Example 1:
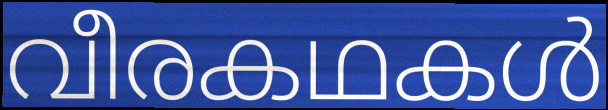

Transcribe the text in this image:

വീരകഥകൾ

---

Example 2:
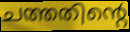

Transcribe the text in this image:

ചത്തതിന്റെ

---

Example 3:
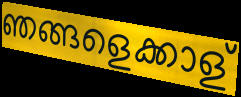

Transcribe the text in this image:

ഞങ്ങളെക്കാള്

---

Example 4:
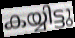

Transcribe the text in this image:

കയ്യിട്ടു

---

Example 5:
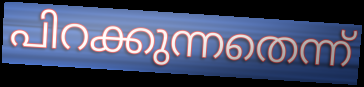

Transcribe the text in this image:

പിറക്കുന്നതെന്ന്